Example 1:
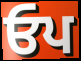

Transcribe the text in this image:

ਓਪ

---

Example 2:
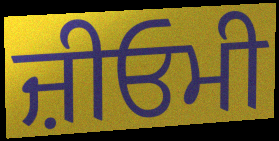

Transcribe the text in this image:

ਜ਼ੀਓਮੀ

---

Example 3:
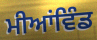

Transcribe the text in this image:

ਮੀਆਂਵਿੰਡ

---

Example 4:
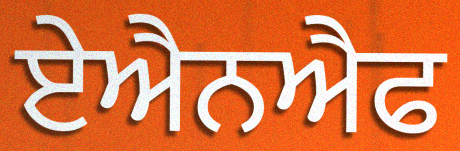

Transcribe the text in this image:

ਏਐਨਐਫ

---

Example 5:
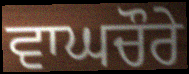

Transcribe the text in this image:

ਵਾਘਚੌਰੇ